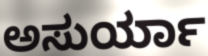
ಅಸುರ್ಯಾ